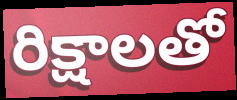
రిక్షాలతో